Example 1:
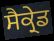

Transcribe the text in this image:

ਸੈਕ੍ਰੇਡ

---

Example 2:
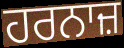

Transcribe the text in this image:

ਹਰਨਾਜ਼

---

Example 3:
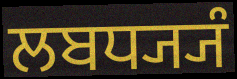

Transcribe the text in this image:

ਲਬਧ੍ਯ੍ਯੰ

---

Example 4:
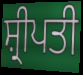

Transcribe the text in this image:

ਸ਼੍ਰੀਪਤੀ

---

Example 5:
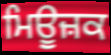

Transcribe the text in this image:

ਮਿਊਜ਼ਕ